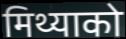
मिथ्याको